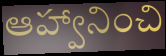
ఆహ్వానించి